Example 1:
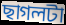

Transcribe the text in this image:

ছাগলটা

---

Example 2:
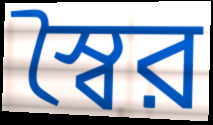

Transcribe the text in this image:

স্বৈর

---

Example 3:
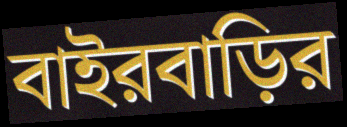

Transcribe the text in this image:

বাইরবাড়ির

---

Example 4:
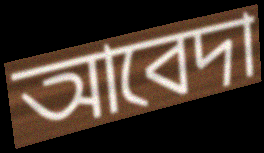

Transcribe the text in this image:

আবেদা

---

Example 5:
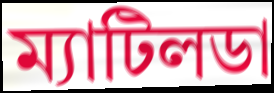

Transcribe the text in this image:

ম্যাটিলডা